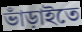
ভাঁড়াইতে